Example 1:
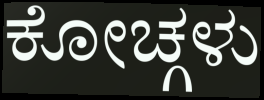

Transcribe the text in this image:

ಕೋಚ್ಗಳು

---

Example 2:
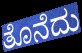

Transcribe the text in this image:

ತೊನೆದು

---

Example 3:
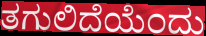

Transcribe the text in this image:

ತಗುಲಿದೆಯೆಂದು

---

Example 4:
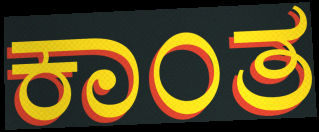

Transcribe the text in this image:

ಕಾಂತ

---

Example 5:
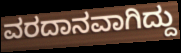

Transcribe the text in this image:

ವರದಾನವಾಗಿದ್ದು